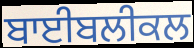
ਬਾਈਬਲੀਕਲ